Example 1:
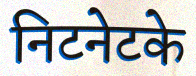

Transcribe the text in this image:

निटनेटके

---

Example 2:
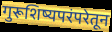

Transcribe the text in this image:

गुरूशिष्यपरंपरेतून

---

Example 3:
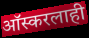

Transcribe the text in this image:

ऑस्करलाही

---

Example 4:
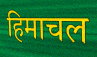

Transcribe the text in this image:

हिमाचल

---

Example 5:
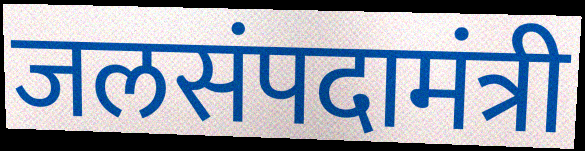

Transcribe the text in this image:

जलसंपदामंत्री